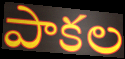
పాకల